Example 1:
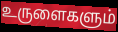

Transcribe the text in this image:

உருளைகளும்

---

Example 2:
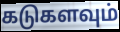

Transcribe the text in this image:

கடுகளவும்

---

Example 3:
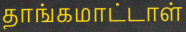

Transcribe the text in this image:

தாங்கமாட்டாள்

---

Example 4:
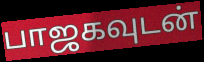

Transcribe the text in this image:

பாஜகவுடன்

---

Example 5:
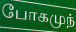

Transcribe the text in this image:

போகமுந்